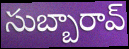
సుబ్బారావ్